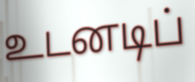
உடனடிப்